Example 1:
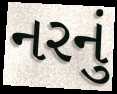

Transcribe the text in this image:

નરનું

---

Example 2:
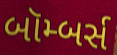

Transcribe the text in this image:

બૉમ્બર્સ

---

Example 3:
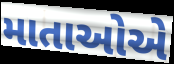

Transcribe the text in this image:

માતાઓએ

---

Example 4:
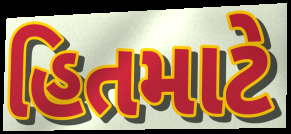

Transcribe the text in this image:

હિતમાટે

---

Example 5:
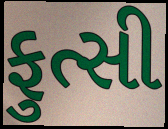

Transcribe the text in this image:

ફુત્સી